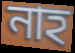
নাহ